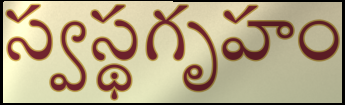
స్వస్థగృహం